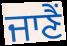
ਜਾਣੈਂ